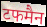
टफमैन